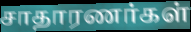
சாதாரணர்கள்